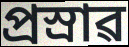
প্ৰস্ৰাৱ